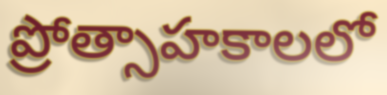
ప్రోత్సాహకాలలో